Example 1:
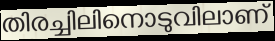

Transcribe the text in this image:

തിരച്ചിലിനൊടുവിലാണ്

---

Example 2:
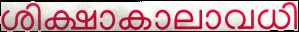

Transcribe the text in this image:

ശിക്ഷാകാലാവധി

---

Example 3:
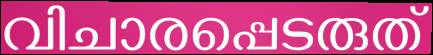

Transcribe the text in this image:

വിചാരപ്പെടരുത്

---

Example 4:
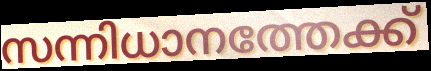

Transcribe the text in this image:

സന്നിധാനത്തേക്ക്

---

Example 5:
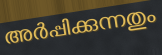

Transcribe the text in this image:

അർപ്പിക്കുന്നതും